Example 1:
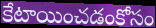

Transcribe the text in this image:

కేటాయించడంకోసం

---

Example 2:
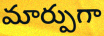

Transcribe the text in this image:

మార్పుగా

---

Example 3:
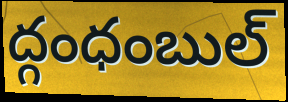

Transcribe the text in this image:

ద్గంధంబుల్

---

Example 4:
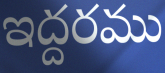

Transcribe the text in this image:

ఇద్దరము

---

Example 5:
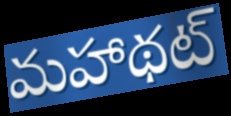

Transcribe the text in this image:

మహాథట్